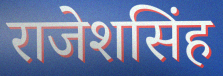
राजेशसिंह